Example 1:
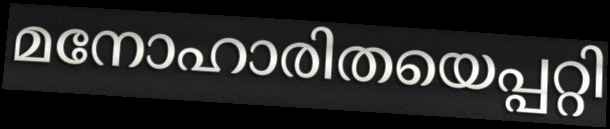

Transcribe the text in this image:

മനോഹാരിതയെപ്പറ്റി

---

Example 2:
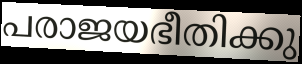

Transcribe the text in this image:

പരാജയഭീതിക്കു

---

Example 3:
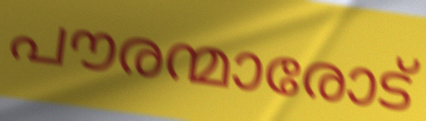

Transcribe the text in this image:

പൗരന്മാരോട്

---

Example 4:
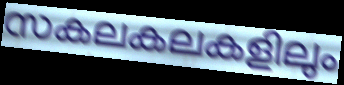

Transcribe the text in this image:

സകലകലകളിലും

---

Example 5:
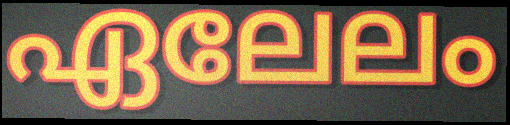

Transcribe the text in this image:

ഏലേലം